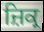
ਜ਼ਿਕ੍ਰ